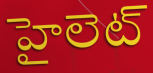
హైలెట్